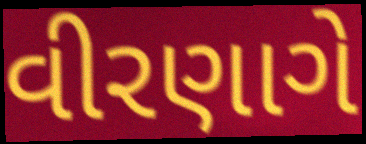
વીરણાગે